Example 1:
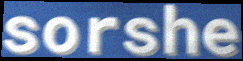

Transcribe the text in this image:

sorshe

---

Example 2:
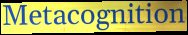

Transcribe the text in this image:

Metacognition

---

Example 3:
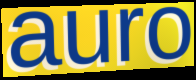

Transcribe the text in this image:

auro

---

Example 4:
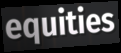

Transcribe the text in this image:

equities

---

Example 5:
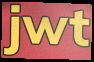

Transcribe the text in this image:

jwt